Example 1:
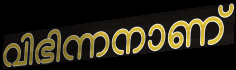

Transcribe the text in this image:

വിഭിന്നനാണ്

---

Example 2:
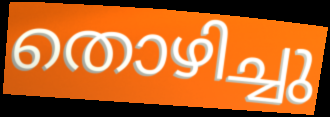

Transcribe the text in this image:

തൊഴിച്ചു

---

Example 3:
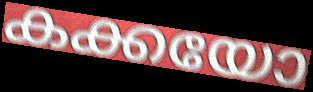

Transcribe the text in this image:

കക്കയോ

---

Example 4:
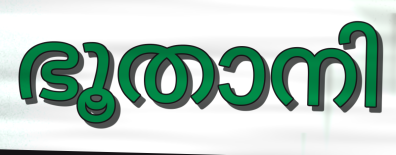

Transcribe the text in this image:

ഭൂതാനി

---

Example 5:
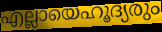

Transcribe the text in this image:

എല്ലായെഹൂദ്യരും